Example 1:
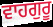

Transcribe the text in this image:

ਵਾਹਗੁਰੂ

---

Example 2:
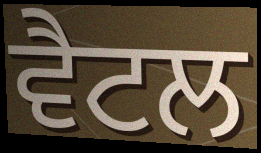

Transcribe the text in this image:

ਵੈਟਲ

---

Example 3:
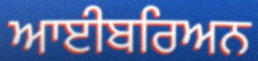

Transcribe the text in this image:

ਆਈਬਰਿਅਨ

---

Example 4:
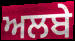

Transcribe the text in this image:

ਅਲਬੇ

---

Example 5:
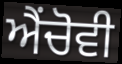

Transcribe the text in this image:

ਐਂਚੋਵੀ